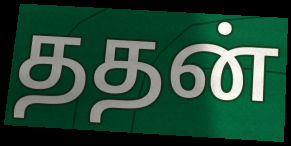
ததன்